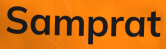
Samprat